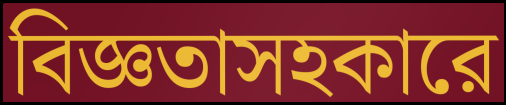
বিজ্ঞতাসহকারে